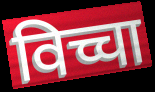
विच्चा